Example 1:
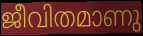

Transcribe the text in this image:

ജീവിതമാണു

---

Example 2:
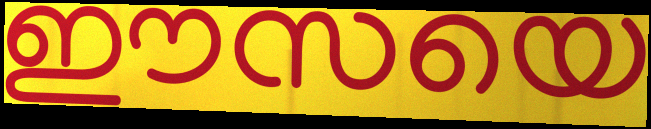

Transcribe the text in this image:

ഈസയെ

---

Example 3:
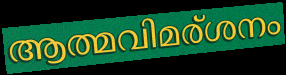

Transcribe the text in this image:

ആത്മവിമര്ശനം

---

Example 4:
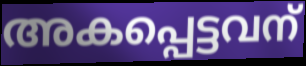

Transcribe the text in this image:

അകപ്പെട്ടവന്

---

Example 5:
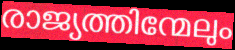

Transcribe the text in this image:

രാജ്യത്തിന്മേലും